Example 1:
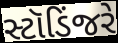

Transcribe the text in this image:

સ્ટૉડિંજરે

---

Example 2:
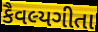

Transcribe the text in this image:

કૈવલ્યગીતા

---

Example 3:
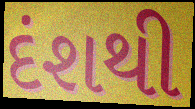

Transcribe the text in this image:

દંશથી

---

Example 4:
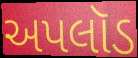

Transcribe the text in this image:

અપલૉડ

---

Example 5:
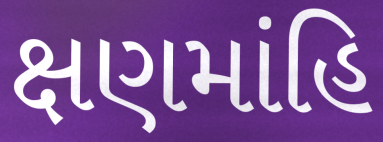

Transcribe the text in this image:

ક્ષણમાંહિ